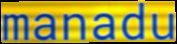
manadu